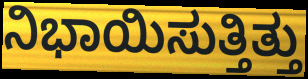
ನಿಭಾಯಿಸುತ್ತಿತ್ತು